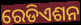
ରେଡିଏଶନ